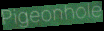
Pigeonhole